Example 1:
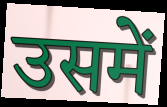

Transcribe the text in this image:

उसमें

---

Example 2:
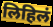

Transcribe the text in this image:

लिहिलं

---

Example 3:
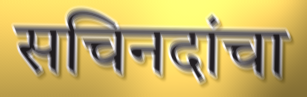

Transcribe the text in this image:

सचिनदांचा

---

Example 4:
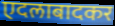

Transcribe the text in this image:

एदलाबादकर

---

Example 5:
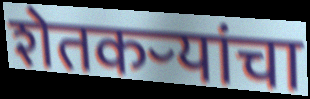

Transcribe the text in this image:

शेतकऱ्यांचा